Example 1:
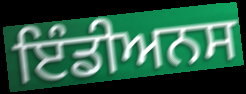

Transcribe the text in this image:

ਇੰਡੀਅਨਸ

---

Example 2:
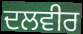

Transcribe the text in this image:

ਦਲਵੀਰ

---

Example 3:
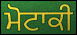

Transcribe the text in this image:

ਮੋਟਾਕੀ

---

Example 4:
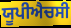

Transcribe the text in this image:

ਯੂਪੀਐਚਸੀ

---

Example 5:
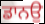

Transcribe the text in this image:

ਡਾਨਉ